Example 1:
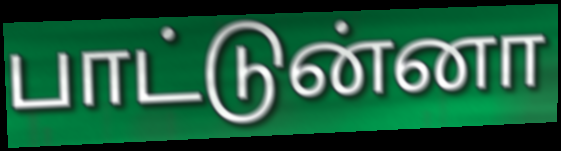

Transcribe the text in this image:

பாட்டுன்னா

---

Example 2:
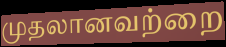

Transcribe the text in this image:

முதலானவற்றை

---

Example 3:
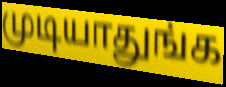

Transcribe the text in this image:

முடியாதுங்க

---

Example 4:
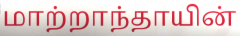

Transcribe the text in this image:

மாற்றாந்தாயின்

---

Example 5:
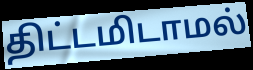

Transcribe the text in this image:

திட்டமிடாமல்